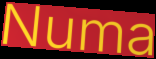
Numa